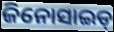
ଜିନୋସାଇଡ୍